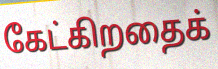
கேட்கிறதைக்